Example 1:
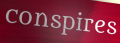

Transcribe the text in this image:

conspires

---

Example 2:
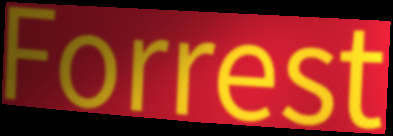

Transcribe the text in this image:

Forrest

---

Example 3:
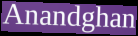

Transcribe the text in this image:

Anandghan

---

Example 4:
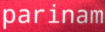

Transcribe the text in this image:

parinam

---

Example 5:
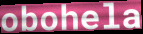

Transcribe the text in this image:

obohela